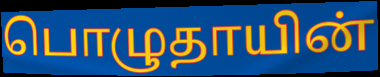
பொழுதாயின்